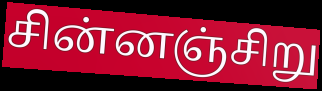
சின்னஞ்சிறு